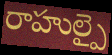
రాహుల్పై